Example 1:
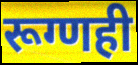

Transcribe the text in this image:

रूग्णही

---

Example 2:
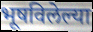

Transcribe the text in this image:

भूषविलेल्या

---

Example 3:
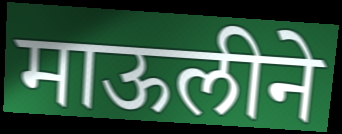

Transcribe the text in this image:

माऊलीने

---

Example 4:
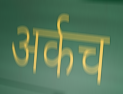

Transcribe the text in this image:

अर्कच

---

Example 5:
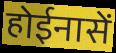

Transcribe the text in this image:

होईनासें